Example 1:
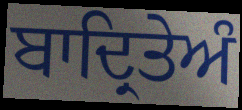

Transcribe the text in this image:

ਬਾਦ੍ਰਿਤੇਅੰ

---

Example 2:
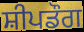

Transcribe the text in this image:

ਸ਼ੀਪਡੌਗ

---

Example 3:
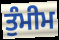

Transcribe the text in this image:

ਤੁੰਮੀਮ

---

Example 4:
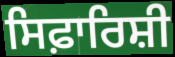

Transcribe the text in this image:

ਸਿਫ਼ਾਰਿਸ਼ੀ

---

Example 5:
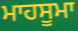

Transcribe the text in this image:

ਮਾਹਸੂਮਾ